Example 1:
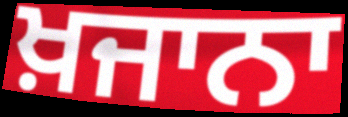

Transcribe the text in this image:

ਖ਼ਜਾਨਾ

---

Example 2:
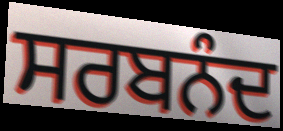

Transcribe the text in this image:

ਸਰਬਨੰਦ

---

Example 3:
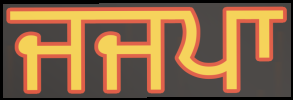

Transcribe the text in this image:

ਜਜਪਾ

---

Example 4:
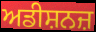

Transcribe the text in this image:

ਅਡੀਸ਼ਨਜ਼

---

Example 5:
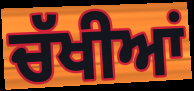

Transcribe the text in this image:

ਚੱਖੀਆਂ